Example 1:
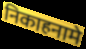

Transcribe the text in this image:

निकाहनामे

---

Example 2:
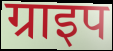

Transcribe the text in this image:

ग्राइप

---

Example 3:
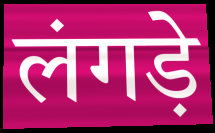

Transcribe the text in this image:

लंगड़े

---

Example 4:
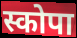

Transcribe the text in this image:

स्कोपा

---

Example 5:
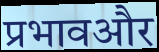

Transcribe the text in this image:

प्रभावऔर